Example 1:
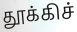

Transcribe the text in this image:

தூக்கிச்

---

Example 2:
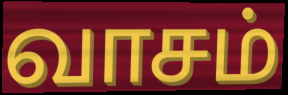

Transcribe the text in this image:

வாசம்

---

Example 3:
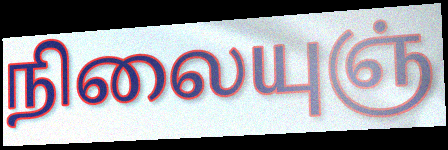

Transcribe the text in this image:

நிலையுஞ்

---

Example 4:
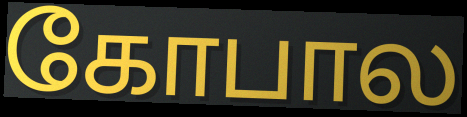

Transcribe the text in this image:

கோபால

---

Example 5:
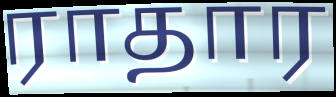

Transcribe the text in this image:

ராதார